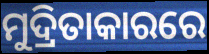
ମୁଦ୍ରିତାକାରରେ